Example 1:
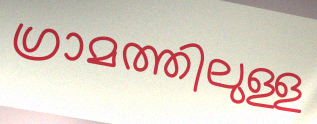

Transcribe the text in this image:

ഗ്രാമത്തിലുള്ള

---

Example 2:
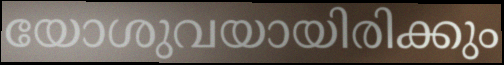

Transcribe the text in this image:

യോശുവയായിരിക്കും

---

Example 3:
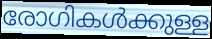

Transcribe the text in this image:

രോഗികൾക്കുള്ള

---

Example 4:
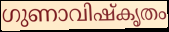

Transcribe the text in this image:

ഗുണാവിഷ്കൃതം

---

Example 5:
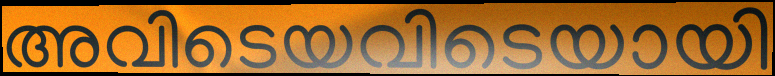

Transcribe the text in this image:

അവിടെയവിടെയായി